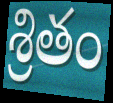
శ్రితం